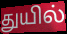
துயில்